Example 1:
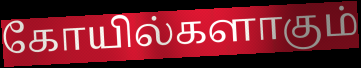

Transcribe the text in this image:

கோயில்களாகும்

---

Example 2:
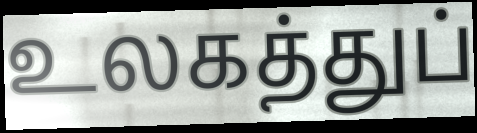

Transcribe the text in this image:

உலகத்துப்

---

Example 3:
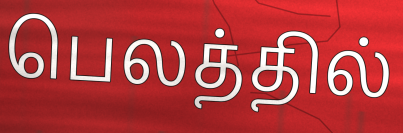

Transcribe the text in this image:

பெலத்தில்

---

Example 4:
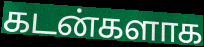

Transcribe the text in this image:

கடன்களாக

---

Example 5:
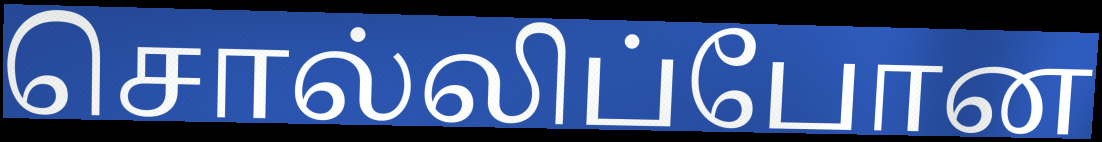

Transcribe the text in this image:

சொல்லிப்போன